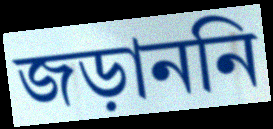
জড়াননি